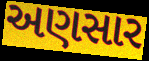
અણસાર